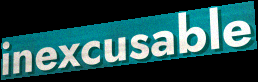
inexcusable